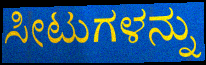
ಸೀಟುಗಳನ್ನು